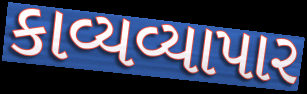
કાવ્યવ્યાપાર